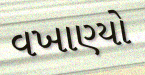
વખાણ્યો